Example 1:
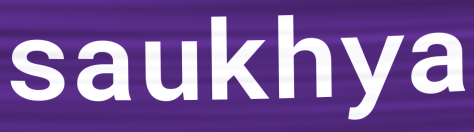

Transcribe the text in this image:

saukhya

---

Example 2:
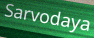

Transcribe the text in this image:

Sarvodaya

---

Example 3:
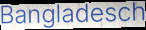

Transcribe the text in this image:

Bangladesch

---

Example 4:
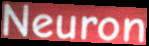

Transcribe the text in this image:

Neuron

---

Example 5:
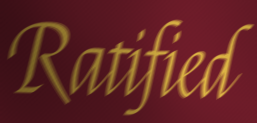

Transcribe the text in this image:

Ratified